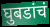
घुबडांचं